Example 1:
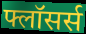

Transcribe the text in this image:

फ्लॉसर्स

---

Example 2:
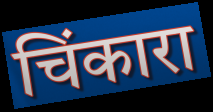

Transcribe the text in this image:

चिंकारा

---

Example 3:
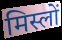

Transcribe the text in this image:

मिस्लों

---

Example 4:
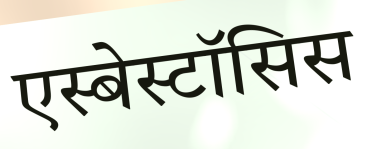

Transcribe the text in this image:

एस्बेस्टॉसिस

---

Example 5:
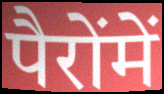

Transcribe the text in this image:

पैरोंमें